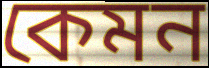
কেমন